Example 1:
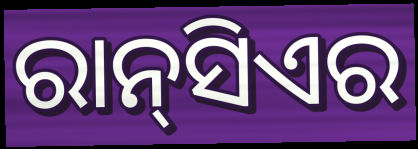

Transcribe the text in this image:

ରାନ୍‌ସିଏର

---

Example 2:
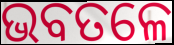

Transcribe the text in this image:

ଭବତଳେ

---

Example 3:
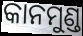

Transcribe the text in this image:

କାନମୁଣ୍ଡ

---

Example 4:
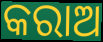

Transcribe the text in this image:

କରାଅ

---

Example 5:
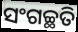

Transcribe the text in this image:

ସଂଗଚ୍ଛତି